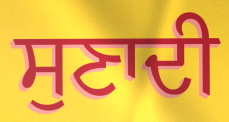
ਸੁਣਾਦੀ